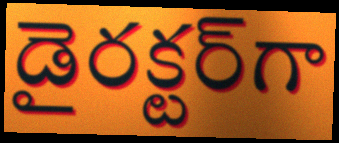
డైరక్టర్‌గా